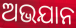
ଅଭଯାନ